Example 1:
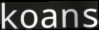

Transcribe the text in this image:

koans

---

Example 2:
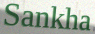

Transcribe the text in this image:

Sankha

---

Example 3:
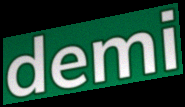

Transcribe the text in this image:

demi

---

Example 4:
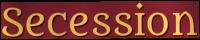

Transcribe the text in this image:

Secession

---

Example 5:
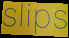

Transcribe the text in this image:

slips